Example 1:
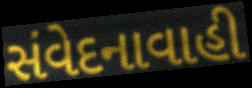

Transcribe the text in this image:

સંવેદનાવાહી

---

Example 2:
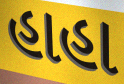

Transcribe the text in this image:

હાહા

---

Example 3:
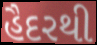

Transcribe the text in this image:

હૈદરથી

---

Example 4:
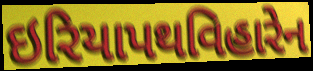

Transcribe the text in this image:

ઇરિયાપથવિહારેન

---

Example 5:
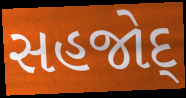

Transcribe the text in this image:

સહજોદ્